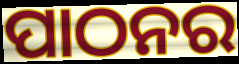
ପାଠନର